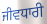
ਜੀਵਧਾਰੀ